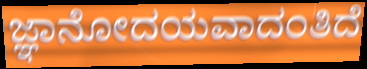
ಜ್ಞಾನೋದಯವಾದಂತಿದೆ